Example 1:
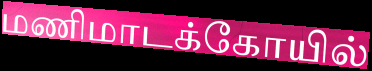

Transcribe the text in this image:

மணிமாடக்கோயில்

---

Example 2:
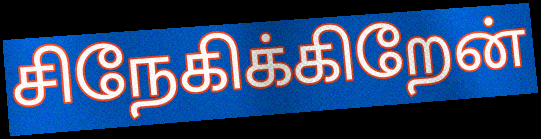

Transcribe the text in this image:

சிநேகிக்கிறேன்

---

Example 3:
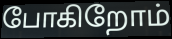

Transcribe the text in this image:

போகிறோம்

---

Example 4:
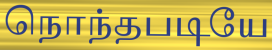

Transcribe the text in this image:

நொந்தபடியே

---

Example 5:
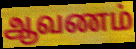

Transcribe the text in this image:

ஆவணம்